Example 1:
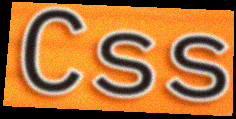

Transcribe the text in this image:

Css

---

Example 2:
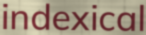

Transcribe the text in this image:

indexical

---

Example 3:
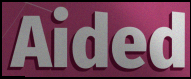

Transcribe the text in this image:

Aided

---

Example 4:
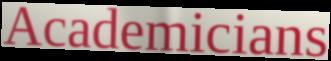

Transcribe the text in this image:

Academicians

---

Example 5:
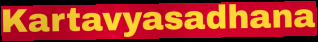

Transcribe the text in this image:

Kartavyasadhana